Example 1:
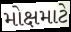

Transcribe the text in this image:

મોક્ષમાટે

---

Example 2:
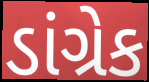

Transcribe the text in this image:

ડાંગ્રેક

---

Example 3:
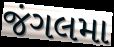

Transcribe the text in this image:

જંગલમા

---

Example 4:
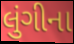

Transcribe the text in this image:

લુંગીના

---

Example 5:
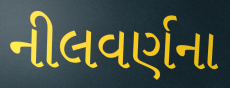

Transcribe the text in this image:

નીલવર્ણના